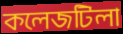
কলেজটিলা